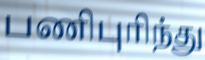
பணிபுரிந்து